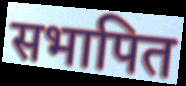
सभापित